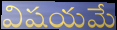
విషయమే